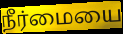
நீர்மையை